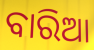
ବାରିଆ